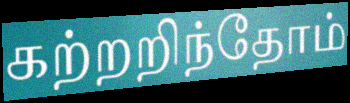
கற்றறிந்தோம்